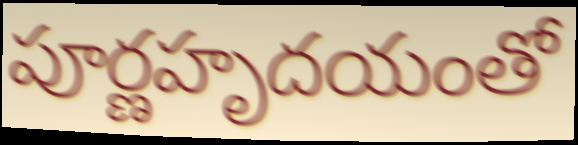
పూర్ణహృదయంతో